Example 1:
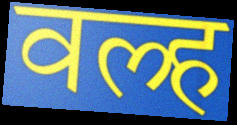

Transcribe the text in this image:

वल्ह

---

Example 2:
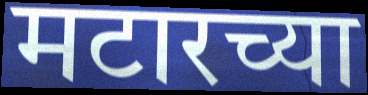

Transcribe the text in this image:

मटारच्या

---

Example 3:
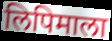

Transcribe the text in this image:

लिपिमाला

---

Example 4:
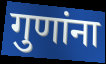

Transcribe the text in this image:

गुणांना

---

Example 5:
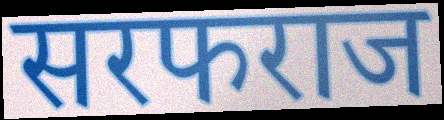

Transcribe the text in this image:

सरफराज